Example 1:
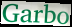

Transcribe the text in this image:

Garbo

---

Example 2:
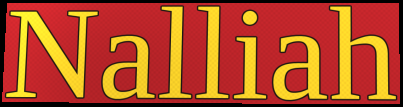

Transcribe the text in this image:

Nalliah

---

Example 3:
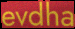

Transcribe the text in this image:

evdha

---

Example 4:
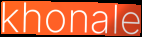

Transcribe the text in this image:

khonale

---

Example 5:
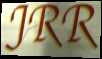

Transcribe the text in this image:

JRR